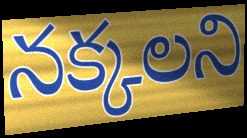
నక్కలని